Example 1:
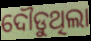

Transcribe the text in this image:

ଦୌଡୁଥିଲା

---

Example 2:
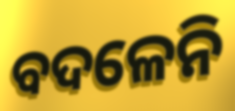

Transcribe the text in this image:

ବଦଳେନି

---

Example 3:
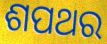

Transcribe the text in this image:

ଶପଥର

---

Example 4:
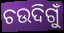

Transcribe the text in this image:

ଚଉଦିଗୁଁ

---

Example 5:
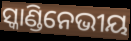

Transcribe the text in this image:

ସ୍କାଣ୍ଡିନେଭୀୟ